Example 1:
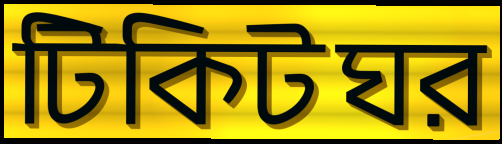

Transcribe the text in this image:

টিকিটঘর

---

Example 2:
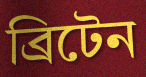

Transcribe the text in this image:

ব্রিটেন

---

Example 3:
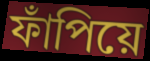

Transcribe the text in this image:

ফাঁপিয়ে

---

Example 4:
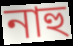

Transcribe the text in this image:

নাহু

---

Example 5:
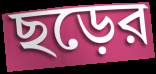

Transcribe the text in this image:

ছড়ের